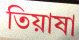
তিয়াষা